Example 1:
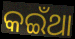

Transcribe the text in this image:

କଇଁଥା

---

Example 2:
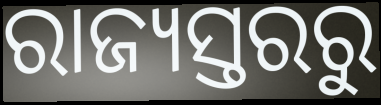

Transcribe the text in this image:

ରାଜ୍ୟସ୍ତରରୁ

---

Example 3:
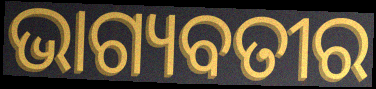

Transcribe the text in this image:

ଭାଗ୍ୟବତୀର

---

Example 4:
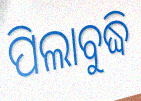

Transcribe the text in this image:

ପିଲାବୁଦ୍ଧି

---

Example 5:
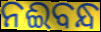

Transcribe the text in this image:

ନଈବନ୍ଧ